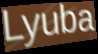
Lyuba